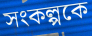
সংকল্পকে